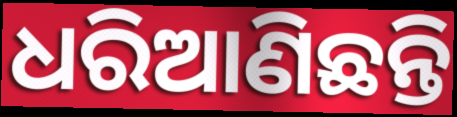
ଧରିଆଣିଛନ୍ତି